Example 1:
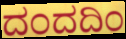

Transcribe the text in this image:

ದಂದದಿಂ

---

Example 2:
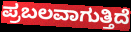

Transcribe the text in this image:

ಪ್ರಬಲವಾಗುತ್ತಿದೆ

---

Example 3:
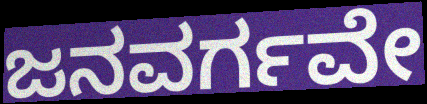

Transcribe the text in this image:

ಜನವರ್ಗವೇ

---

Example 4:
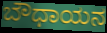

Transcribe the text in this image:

ಬೌಧಾಯನ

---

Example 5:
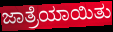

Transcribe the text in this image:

ಜಾತ್ರೆಯಾಯಿತು